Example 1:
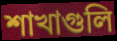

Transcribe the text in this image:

শাখাগুলি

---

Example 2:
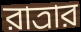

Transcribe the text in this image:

রাত্রার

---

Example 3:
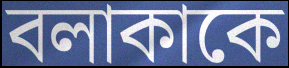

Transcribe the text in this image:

বলাকাকে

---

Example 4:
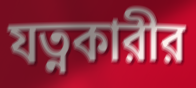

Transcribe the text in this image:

যত্নকারীর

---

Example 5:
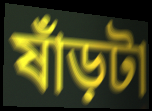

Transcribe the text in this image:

ষাঁড়টা